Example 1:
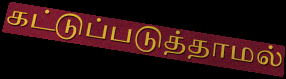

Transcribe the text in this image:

கட்டுப்படுத்தாமல்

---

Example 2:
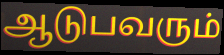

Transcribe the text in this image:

ஆடுபவரும்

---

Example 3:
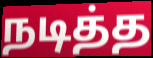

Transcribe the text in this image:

நடித்த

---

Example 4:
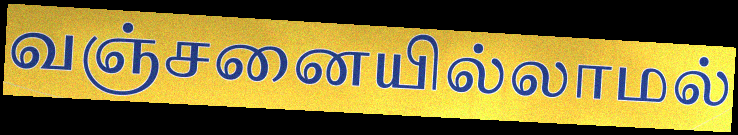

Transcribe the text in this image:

வஞ்சனையில்லாமல்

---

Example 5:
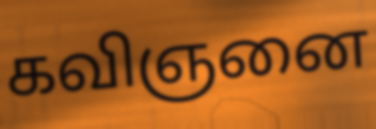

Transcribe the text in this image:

கவிஞனை